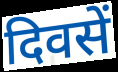
दिवसें